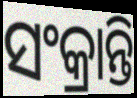
ସଂକ୍ରାନ୍ତି